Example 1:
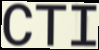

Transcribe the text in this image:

CTI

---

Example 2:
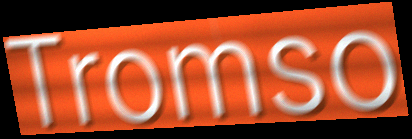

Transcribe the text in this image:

Tromso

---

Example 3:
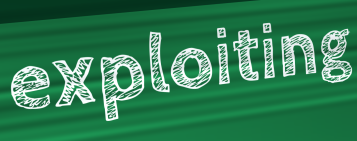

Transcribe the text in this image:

exploiting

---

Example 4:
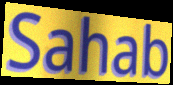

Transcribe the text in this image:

Sahab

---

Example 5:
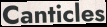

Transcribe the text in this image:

Canticles